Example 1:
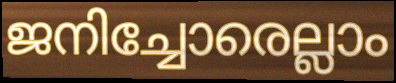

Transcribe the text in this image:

ജനിച്ചോരെല്ലാം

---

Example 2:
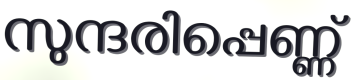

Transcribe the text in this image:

സുന്ദരിപ്പെണ്ണ്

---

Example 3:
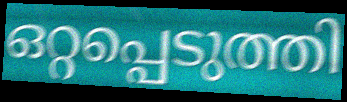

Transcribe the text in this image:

ഒറ്റപ്പെടുത്തി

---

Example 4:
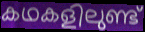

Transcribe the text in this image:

കഥകളിലുണ്ട്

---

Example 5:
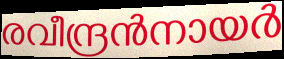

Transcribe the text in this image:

രവീന്ദ്രൻനായർ